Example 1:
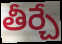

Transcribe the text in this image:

తీర్చే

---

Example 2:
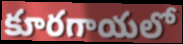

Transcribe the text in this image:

కూరగాయలో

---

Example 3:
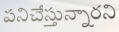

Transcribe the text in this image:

పనిచేస్తున్నారని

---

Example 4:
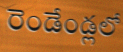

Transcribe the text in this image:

రెండేండ్లలో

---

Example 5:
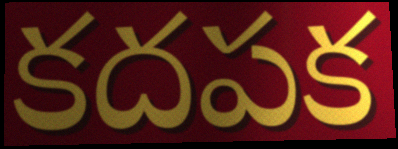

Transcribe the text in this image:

కదపక